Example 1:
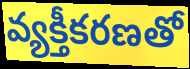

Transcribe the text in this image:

వ్యక్తీకరణతో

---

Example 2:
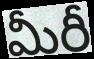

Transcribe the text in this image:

మీరీ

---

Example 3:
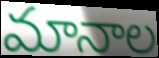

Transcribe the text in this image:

మానాల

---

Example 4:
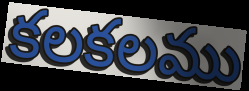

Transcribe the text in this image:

కలకలము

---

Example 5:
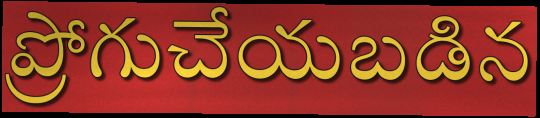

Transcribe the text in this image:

ప్రోగుచేయబడిన